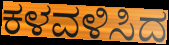
ಕಳವಳಿಸಿದ